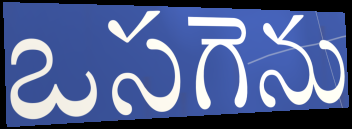
ఒసగెను